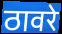
ठावरे